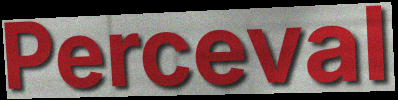
Perceval